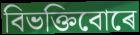
বিভক্তিবোৰে